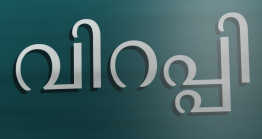
വിറപ്പി